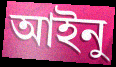
আইনু